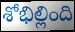
శోభిల్లింది